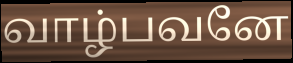
வாழ்பவனே